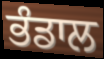
ਭੰਡਾਲ